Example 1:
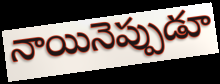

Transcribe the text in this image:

నాయినెప్పుడూ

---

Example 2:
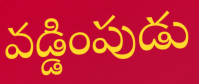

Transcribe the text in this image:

వడ్డింపుడు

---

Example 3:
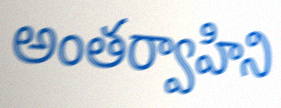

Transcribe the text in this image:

అంతర్వాహిని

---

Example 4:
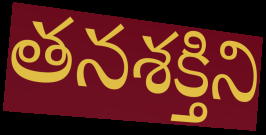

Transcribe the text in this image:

తనశక్తిని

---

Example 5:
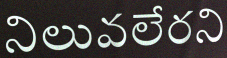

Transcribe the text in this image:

నిలువలేరని